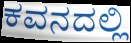
ಕವನದಲ್ಲಿ